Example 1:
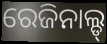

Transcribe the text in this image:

ରେଜିନାଲ୍ଡ୍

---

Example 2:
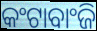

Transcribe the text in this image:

କଂଟାବାଂଜି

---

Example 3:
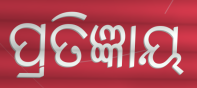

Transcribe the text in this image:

ପ୍ରତିଜ୍ଞାୟ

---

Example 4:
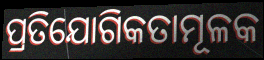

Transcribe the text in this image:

ପ୍ରତିଯୋଗିକତାମୂଳକ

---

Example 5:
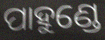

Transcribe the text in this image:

ପାହୁଣ୍ଡେ